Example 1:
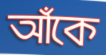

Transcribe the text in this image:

আঁকে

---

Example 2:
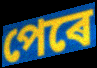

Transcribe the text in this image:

পেৰে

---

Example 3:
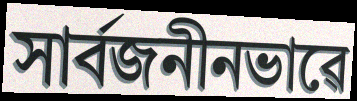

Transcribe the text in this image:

সাৰ্বজনীনভাৱে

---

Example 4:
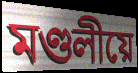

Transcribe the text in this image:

মণ্ডলীয়ে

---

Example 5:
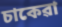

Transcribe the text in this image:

চাকেৱা